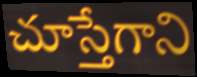
చూస్తేగాని